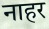
नाहर